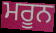
ਮਰੂਨ